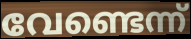
വേണ്ടെന്ന്